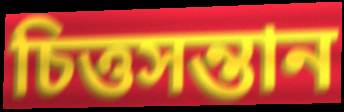
চিত্তসন্তান